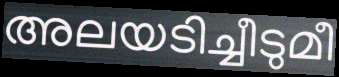
അലയടിച്ചീടുമീ